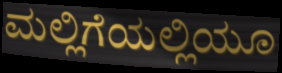
ಮಲ್ಲಿಗೆಯಲ್ಲಿಯೂ